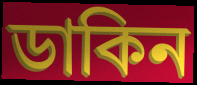
ডাকিন